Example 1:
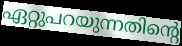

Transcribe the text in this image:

ഏറ്റുപറയുന്നതിന്റെ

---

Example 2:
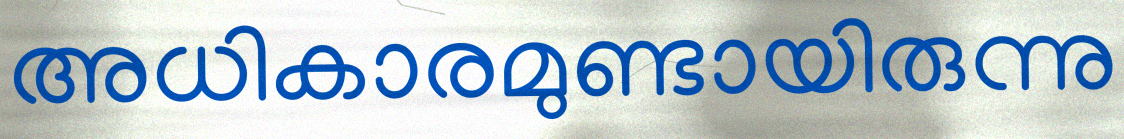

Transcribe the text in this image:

അധികാരമുണ്ടായിരുന്നു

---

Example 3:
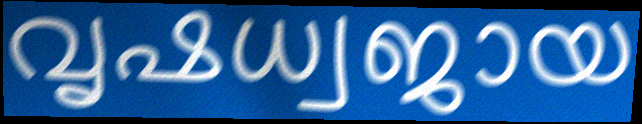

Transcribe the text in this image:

വൃഷധ്വജായ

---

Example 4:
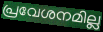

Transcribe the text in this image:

പ്രവേശനമില്ല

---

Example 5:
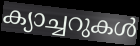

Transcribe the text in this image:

ക്യാച്ചറുകൾ